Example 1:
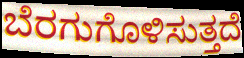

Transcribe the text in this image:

ಬೆರಗುಗೊಳಿಸುತ್ತದೆ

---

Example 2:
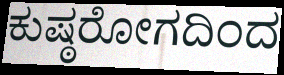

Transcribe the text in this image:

ಕುಷ್ಠರೋಗದಿಂದ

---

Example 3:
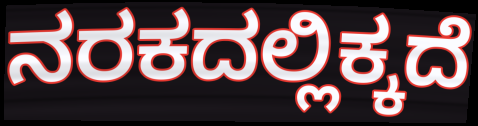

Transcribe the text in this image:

ನರಕದಲ್ಲಿಕ್ಕದೆ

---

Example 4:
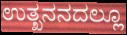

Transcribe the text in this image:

ಉತ್ಖನನದಲ್ಲೂ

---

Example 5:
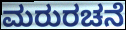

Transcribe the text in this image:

ಮರುರಚನೆ